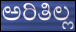
ಅರಿತಿಲ್ಲ